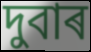
দুবাৰ